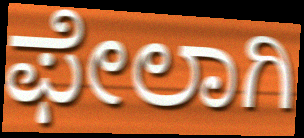
ಫೇಲಾಗಿ